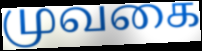
முவகை